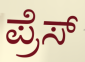
ಪ್ರೆಸ್